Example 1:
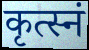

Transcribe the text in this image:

कृत्स्नं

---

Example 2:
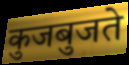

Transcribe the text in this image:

कुजबुजते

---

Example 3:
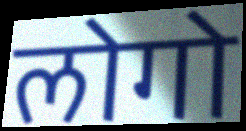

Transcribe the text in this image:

लोगो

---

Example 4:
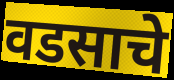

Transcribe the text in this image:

वडसाचे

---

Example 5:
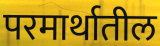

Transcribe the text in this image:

परमार्थातील